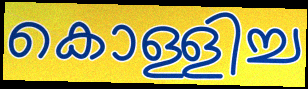
കൊള്ളിച്ച